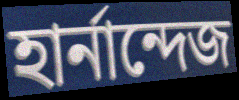
হার্নান্দেজ